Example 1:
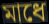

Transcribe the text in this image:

মাধে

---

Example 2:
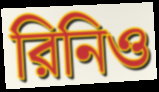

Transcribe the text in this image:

রিনিও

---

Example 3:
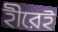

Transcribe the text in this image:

হীরেই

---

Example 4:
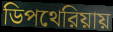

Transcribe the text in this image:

ডিপথেরিয়ায়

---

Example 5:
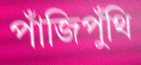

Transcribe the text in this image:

পাঁজিপুঁথি